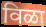
विळा